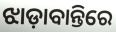
ଝାଡ଼ାବାନ୍ତିରେ